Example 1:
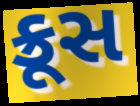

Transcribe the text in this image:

ક્રૂસ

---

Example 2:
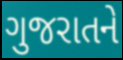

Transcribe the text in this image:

ગુજરાતને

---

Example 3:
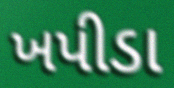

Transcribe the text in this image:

ખપીડા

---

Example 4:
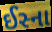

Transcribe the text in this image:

ઈસ્ના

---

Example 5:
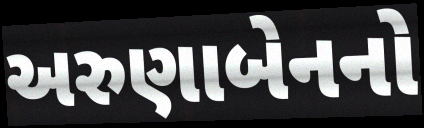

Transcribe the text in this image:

અરુણાબેનનો